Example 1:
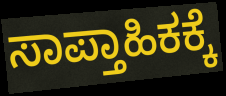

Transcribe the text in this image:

ಸಾಪ್ತಾಹಿಕಕ್ಕೆ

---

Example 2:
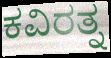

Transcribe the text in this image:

ಕವಿರತ್ನ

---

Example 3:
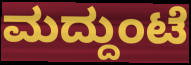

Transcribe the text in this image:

ಮದ್ದುಂಟೆ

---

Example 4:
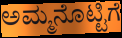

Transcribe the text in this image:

ಅಮ್ಮನೊಟ್ಟಿಗೆ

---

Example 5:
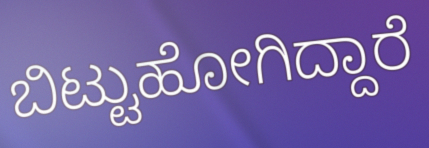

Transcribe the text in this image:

ಬಿಟ್ಟುಹೋಗಿದ್ದಾರೆ